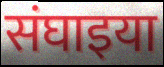
संघाइया